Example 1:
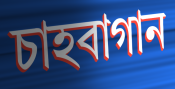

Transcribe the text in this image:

চাহবাগান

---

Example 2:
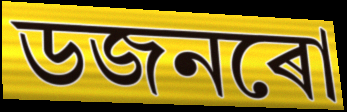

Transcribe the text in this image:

ডজনৰো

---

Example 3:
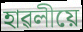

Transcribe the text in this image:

হাৱলীয়ে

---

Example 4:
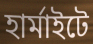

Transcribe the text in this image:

হাৰ্মাইটে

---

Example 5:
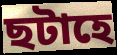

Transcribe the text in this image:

ছটাহে